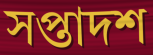
সপ্তাদশ